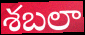
శబలా